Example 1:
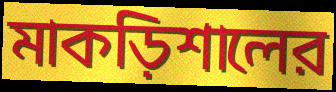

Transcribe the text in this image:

মাকড়িশালের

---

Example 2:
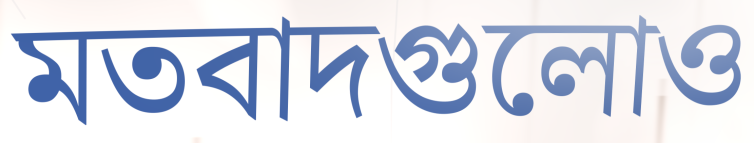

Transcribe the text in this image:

মতবাদগুলোও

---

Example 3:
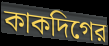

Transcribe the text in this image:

কাকদিগের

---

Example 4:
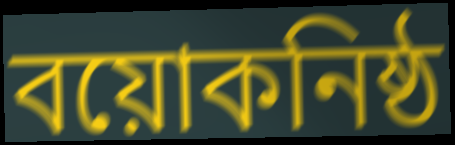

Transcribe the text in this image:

বয়োকনিষ্ঠ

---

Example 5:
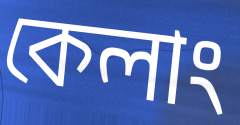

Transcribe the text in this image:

কেলাং